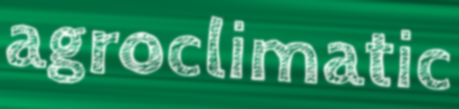
agroclimatic